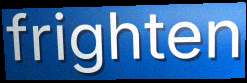
frighten